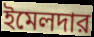
ইমেলদার